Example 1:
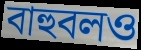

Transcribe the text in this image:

বাহুবলও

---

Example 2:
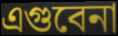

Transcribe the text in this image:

এগুবেনা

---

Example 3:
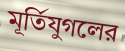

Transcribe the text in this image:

মূর্তিযুগলের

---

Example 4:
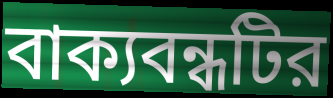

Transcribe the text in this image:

বাক্যবন্ধটির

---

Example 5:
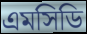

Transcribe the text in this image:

এমসিডি